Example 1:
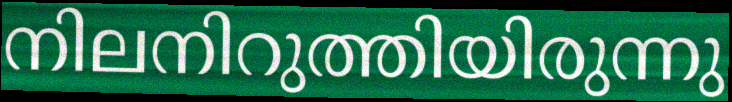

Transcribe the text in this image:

നിലനിറുത്തിയിരുന്നു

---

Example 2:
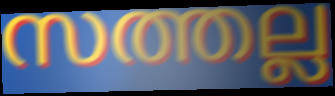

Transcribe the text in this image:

സത്തല്ല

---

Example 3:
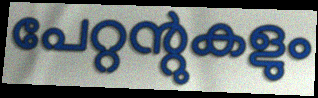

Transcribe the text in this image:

പേറ്റന്റുകളും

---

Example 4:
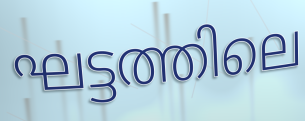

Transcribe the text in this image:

ഘട്ടത്തിലെ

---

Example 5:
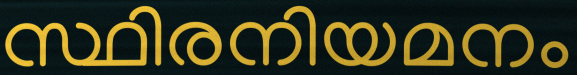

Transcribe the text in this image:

സ്ഥിരനിയമനം